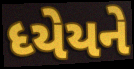
ધ્યેયને